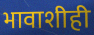
भावाशीही